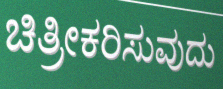
ಚಿತ್ರೀಕರಿಸುವುದು